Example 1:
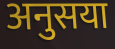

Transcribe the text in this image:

अनुसया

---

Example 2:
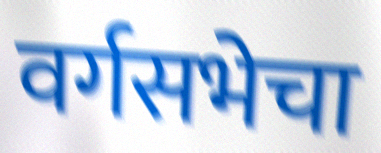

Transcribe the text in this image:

वर्गसभेचा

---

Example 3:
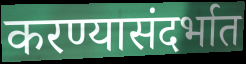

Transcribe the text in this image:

करण्यासंदर्भात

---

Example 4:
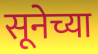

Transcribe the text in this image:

सूनेच्या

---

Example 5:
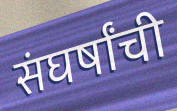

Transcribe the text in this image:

संघर्षांची